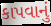
કાપવાનું